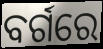
ବର୍ଗରେ